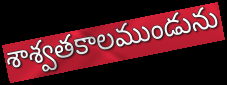
శాశ్వతకాలముండును